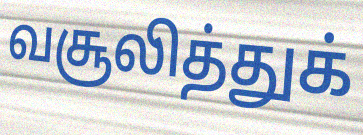
வசூலித்துக்